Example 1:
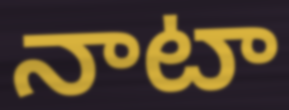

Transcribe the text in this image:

నాటా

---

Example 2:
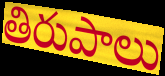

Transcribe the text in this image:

తిరుపాలు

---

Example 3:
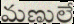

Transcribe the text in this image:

మణులే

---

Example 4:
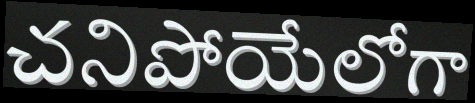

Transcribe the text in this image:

చనిపోయేలోగా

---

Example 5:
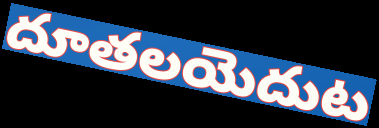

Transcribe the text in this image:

దూతలయెదుట